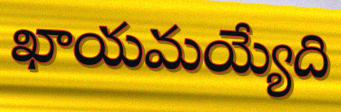
ఖాయమయ్యేది